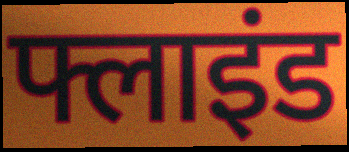
फ्लाइंड